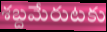
శబ్దమేరుటకు